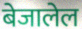
बेजालेल